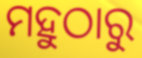
ମହୁଠାରୁ